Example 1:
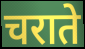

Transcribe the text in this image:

चराते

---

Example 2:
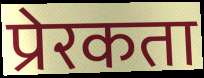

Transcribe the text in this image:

प्रेरकता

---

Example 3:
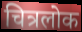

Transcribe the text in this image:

चित्रलोक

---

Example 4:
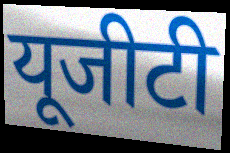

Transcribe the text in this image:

यूजीटी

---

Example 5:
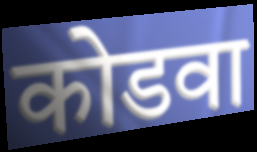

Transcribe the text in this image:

कोडवा